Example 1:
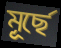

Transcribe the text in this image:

মূর্ছে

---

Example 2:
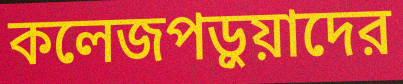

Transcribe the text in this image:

কলেজপড়ুয়াদের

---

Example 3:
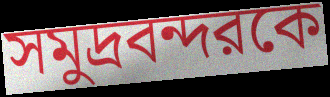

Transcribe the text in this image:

সমুদ্রবন্দরকে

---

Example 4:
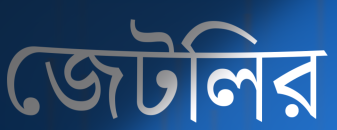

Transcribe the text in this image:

জেটলির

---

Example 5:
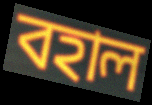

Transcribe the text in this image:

বহাল